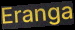
Eranga